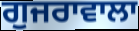
ਗੁਜਰਾਵਾਲਾ